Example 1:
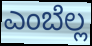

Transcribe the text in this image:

ಎಂಬೆಲ್ಲ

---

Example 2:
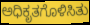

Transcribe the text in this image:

ಅಧಿಕೃತಗೊಳಿಸಿತು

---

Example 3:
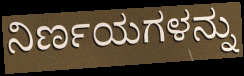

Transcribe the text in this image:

ನಿರ್ಣಯಗಳನ್ನು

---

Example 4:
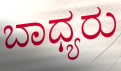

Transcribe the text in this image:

ಬಾಧ್ಯರು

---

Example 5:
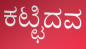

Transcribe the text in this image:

ಕಟ್ಟಿದವ